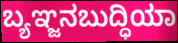
ಬ್ಯಞ್ಜನಬುದ್ಧಿಯಾ